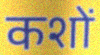
कशों